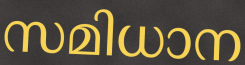
സമിധാന